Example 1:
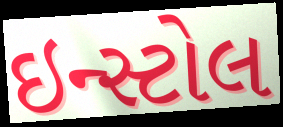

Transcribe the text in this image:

ઇન્સ્ટોલ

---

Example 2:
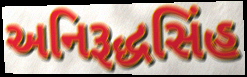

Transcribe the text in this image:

અનિરૂદ્ધસિંહ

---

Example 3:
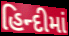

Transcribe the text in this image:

હિન્દીમાં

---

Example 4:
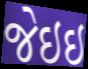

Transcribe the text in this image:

જેઇઇ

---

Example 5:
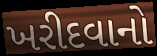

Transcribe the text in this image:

ખરીદવાનો